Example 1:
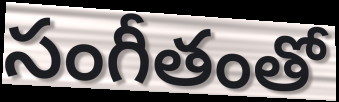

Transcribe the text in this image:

సంగీతంతో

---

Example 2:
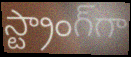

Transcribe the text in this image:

స్ట్రాంగ్‌గా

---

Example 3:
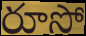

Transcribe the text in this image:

రూసో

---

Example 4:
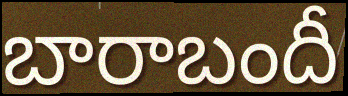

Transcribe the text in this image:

బారాబందీ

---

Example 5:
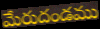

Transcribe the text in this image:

మేరుదండము